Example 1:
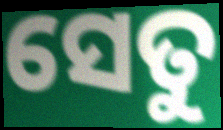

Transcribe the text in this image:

ସେତୁ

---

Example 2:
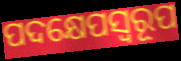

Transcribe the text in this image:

ପଦକ୍ଷେପସ୍ୱରୂପ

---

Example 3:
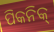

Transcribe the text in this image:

ପିକନିକ୍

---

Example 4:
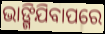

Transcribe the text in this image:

ଭାଙ୍ଗିଯିବାପରେ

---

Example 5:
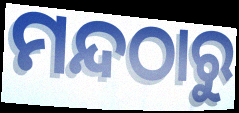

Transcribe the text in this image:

ମନ୍ଦଠାରୁ